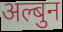
अल्बुन